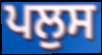
ਪਲੁਸ